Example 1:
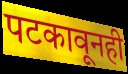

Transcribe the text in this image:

पटकावूनही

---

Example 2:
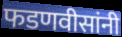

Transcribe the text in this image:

फडणवीसांनी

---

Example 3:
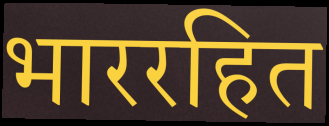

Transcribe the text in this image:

भाररहित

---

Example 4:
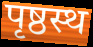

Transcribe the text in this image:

पृष्ठस्थ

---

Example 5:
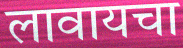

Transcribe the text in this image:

लावायचा